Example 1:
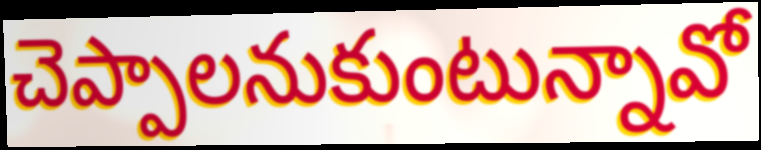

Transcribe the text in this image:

చెప్పాలనుకుంటున్నావో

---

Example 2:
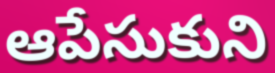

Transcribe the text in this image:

ఆపేసుకుని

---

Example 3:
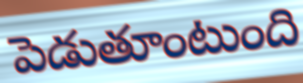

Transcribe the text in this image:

పెడుతూంటుంది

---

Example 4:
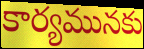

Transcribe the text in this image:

కార్యమునకు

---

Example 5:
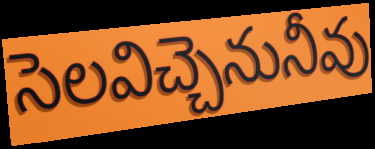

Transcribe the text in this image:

సెలవిచ్చెనునీవు